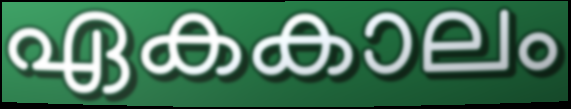
ഏകകാലം